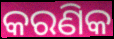
କରଣିକ